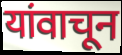
यांवाचून